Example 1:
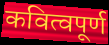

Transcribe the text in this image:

कवित्वपूर्ण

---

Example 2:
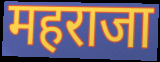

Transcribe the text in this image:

महराजा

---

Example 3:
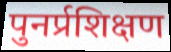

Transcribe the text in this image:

पुनर्प्रशिक्षण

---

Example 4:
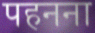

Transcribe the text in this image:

पहनना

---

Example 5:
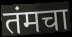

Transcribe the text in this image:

तंमचा